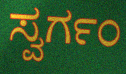
ಸ್ವರ್ಗಂ